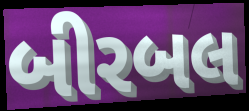
બીરબલ